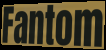
Fantom